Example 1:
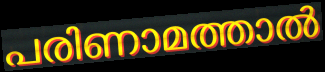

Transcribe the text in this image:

പരിണാമത്താൽ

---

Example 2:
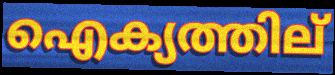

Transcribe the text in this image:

ഐക്യത്തില്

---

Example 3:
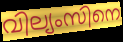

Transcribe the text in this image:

വില്യംസിനെ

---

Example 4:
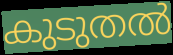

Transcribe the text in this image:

കുടുതൽ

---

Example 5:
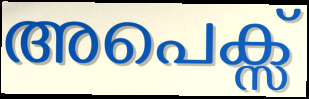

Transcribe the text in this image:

അപെക്സ്